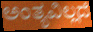
ಅಂತ್ಯವಿಲ್ಲದೆ